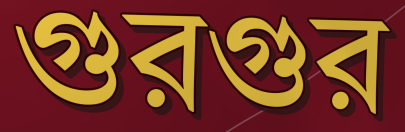
গুরগুর